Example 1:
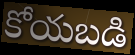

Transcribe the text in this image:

కోయబడి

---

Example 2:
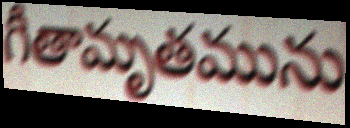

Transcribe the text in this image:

గీతామృతమును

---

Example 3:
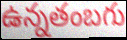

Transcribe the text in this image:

ఉన్నతంబగు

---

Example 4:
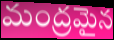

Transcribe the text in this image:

మంద్రమైన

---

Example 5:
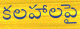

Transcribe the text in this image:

కలహాలపై